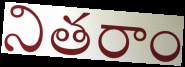
నితరాం